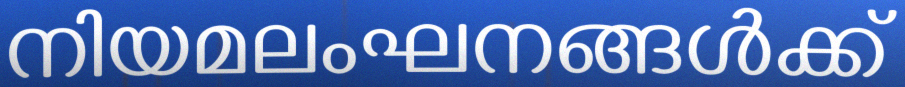
നിയമലംഘനങ്ങൾക്ക്